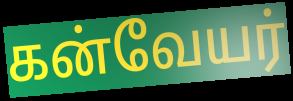
கன்வேயர்